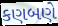
કણબણે